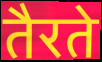
तैरते